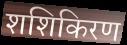
शशिकिरण